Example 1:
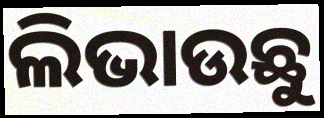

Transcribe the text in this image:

ଲିଭାଉଛୁ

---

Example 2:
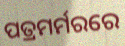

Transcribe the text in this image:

ପତ୍ରମର୍ମରରେ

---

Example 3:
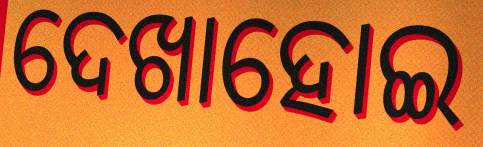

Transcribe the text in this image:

ଦେଖାହୋଇ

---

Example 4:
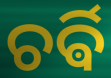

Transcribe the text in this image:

ଚର୍ଵି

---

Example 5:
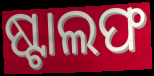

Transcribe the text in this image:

ଷ୍ଟାଲଫ